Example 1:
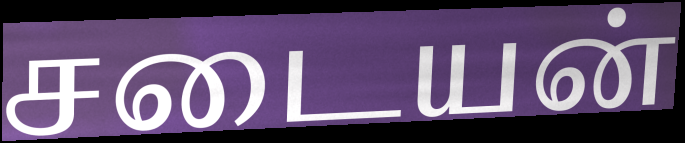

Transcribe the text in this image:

சடையன்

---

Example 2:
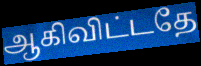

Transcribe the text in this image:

ஆகிவிட்டதே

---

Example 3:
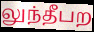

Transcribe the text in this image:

லுந்தீபற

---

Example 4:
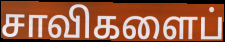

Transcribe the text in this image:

சாவிகளைப்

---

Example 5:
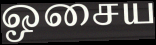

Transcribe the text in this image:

ஓசைய